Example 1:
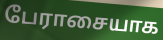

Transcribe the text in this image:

பேராசையாக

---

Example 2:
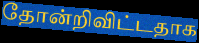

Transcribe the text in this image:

தோன்றிவிட்டதாக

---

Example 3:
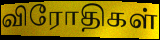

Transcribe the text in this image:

விரோதிகள்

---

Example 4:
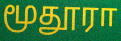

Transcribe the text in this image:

மூதூரா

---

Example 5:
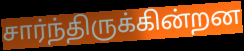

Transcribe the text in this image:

சார்ந்திருக்கின்றன